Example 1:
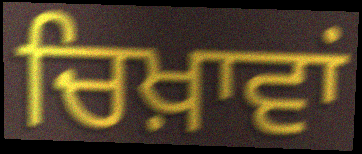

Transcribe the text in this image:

ਚਿਖ਼ਾਵਾਂ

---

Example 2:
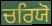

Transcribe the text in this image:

ਚਰਿਯੋ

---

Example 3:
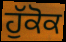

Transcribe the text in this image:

ਹੁੱਕੋਕ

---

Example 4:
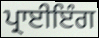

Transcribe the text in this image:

ਪ੍ਰਾਈਇੰਗ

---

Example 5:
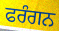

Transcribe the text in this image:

ਫਰੰਗਨ